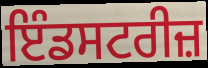
ਇੰਡਸਟਰੀਜ਼